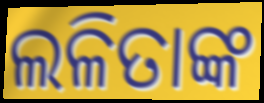
ଲଳିତାଙ୍କ